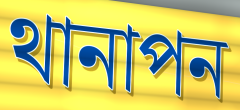
থানাপন